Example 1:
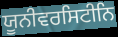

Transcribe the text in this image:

ਯੂਨੀਵਰਸਿਟੀਨਿ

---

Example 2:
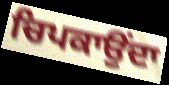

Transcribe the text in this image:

ਚਿਪਕਾਉਂਦਾ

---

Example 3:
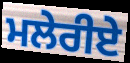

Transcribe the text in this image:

ਮਲੇਰੀਏ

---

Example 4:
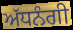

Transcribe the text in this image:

ਅੱਧਨੰਗੀ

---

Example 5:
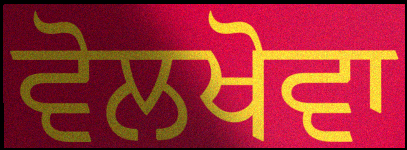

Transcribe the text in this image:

ਵੋਲਖੋਵਾ